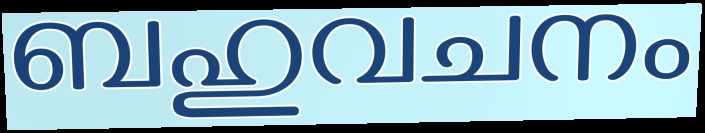
ബഹുവചനം